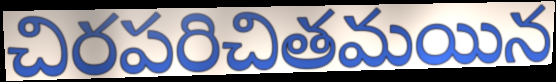
చిరపరిచితమయిన